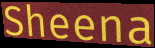
Sheena